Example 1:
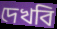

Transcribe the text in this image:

দেখবি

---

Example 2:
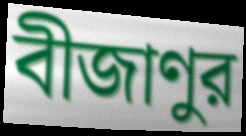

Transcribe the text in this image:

বীজাণুর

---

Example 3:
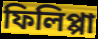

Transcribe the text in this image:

ফিলিপ্পা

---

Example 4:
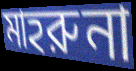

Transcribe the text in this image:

মাহরুনা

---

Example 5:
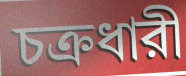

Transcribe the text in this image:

চক্রধারী